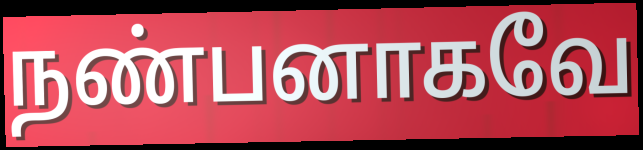
நண்பனாகவே